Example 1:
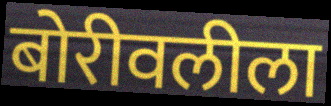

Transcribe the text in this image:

बोरीवलीला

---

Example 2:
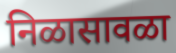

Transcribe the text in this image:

निळासावळा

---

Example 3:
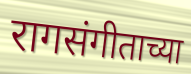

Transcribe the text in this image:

रागसंगीताच्या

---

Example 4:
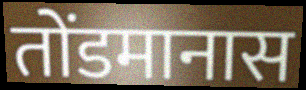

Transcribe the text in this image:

तोंडमानास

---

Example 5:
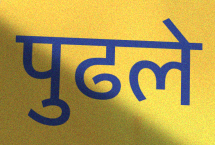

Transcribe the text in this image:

पुढले